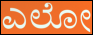
ಎಲೋ